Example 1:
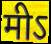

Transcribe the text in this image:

मीऽ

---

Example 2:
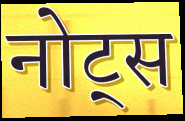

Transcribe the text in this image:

नोट्‌स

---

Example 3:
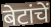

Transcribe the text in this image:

बेटांचें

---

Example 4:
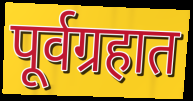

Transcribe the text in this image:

पूर्वग्रहात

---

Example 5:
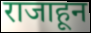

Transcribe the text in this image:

राजाहून